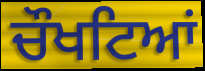
ਚੌਖਟਿਆਂ